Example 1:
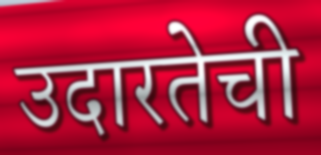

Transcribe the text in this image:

उदारतेची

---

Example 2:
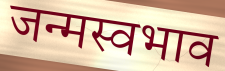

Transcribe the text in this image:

जन्मस्वभाव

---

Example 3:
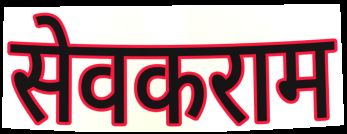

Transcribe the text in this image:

सेवकराम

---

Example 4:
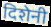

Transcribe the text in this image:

दिशेनी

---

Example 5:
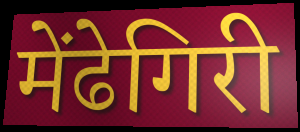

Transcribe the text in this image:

मेंढेगिरी